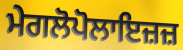
ਮੇਗਲੋਪੋਲਾਇਜ਼ਜ਼